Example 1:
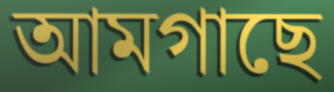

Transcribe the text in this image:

আমগাছে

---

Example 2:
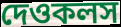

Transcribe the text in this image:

দেওকলস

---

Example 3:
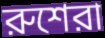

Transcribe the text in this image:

রুশেরা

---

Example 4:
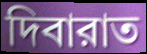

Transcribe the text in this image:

দিবারাত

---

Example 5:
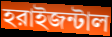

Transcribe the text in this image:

হরাইজন্টাল